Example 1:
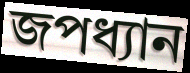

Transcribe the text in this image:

জপধ্যান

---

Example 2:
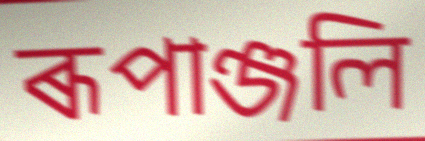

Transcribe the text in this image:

ৰূপাঞ্জলি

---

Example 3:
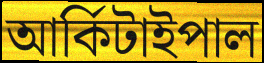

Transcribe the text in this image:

আৰ্কিটাইপাল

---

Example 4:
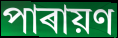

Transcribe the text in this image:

পাৰায়ণ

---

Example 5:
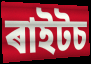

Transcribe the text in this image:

ৰাইটচ